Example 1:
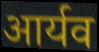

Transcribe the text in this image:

आर्यव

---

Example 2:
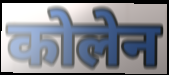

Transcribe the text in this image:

कोलेन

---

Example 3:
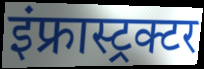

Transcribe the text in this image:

इंफ्रास्ट्रक्टर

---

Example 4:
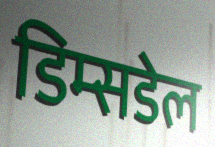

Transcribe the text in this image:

डिम्सडेल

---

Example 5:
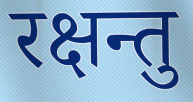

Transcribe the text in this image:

रक्षन्तु